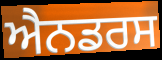
ਐਨਡਰਸ